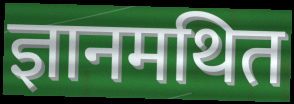
ज्ञानमथित